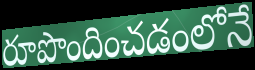
రూపొందించడంలోనే